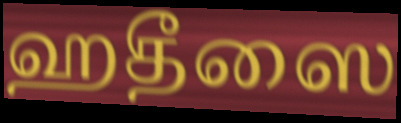
ஹதீஸை